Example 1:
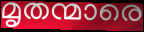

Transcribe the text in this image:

മൃതന്മാരെ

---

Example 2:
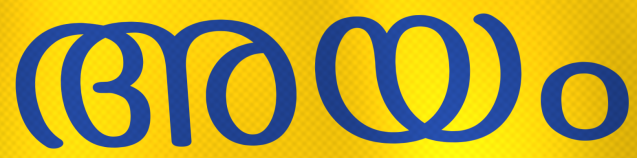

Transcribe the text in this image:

അയം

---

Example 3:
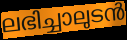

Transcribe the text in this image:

ലഭിച്ചാലുടൻ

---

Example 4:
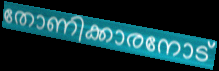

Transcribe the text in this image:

തോണിക്കാരനോട്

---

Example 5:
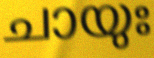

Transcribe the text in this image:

ചായുഃ